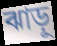
ঝাড়ু